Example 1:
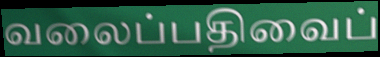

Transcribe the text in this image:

வலைப்பதிவைப்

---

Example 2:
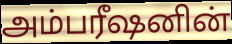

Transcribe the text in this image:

அம்பரீஷனின்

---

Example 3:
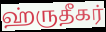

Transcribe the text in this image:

ஹ்ருதீகர்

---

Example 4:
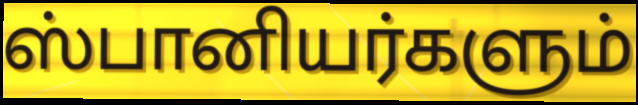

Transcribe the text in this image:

ஸ்பானியர்களும்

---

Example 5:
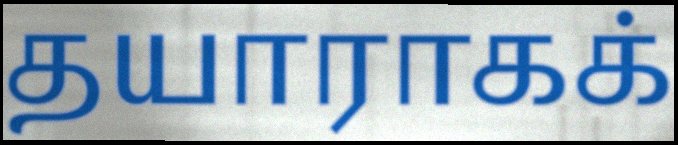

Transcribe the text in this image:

தயாராகக்